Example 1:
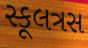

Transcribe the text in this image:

સ્કૂલત્રસ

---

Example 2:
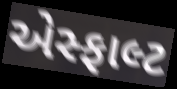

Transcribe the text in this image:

એસ્ફાલ્ટ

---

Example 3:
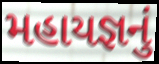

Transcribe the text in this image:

મહાયજ્ઞનું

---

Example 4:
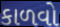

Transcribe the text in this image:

કાળવો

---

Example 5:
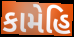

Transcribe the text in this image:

કામેહિ